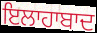
ਇਲਾਹਾਬਾਦ